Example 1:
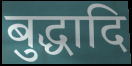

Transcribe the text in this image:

बुद्धादि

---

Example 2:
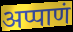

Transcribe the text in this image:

अप्पाणं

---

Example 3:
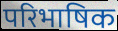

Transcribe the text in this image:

परिभाषिक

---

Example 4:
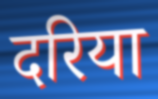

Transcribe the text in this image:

दरिया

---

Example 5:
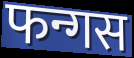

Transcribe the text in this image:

फन्गस